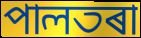
পালতৰা